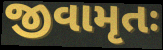
જીવામૃતઃ